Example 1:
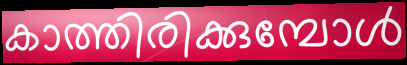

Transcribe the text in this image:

കാത്തിരിക്കുമ്പോൾ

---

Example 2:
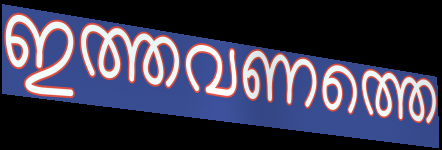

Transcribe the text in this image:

ഇത്തവണത്തെ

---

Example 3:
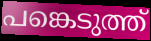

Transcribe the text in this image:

പങ്കെടുത്ത്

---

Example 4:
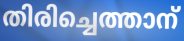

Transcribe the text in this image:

തിരിച്ചെത്താന്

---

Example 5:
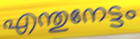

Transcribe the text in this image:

എന്തുനേട്ടം